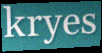
kryes